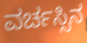
ವರ್ಚಸ್ಸಿನ